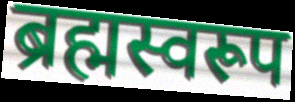
ब्रह्मस्वरूप